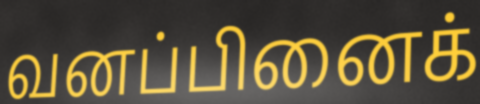
வனப்பினைக்